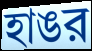
হাঙর